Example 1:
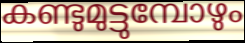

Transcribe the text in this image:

കണ്ടുമുട്ടുമ്പോഴും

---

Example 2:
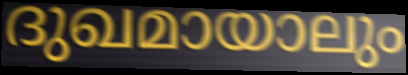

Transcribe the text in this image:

ദുഖമായാലും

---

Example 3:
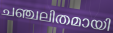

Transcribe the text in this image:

ചഞ്ചലിതമായി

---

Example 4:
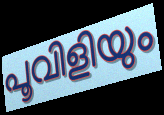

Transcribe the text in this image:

പൂവിളിയും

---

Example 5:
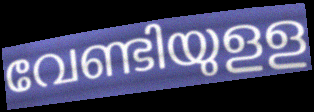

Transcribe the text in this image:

വേണ്ടിയുളള